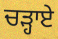
ਚੜ੍ਹਾਏ